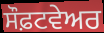
ਸੌਫ਼ਟਵੇਅਰ